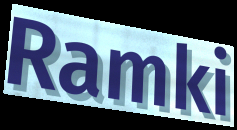
Ramki